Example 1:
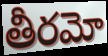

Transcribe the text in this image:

తీరమో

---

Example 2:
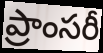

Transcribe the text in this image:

ప్రాంసరీ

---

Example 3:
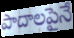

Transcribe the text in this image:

పాదాలపైనే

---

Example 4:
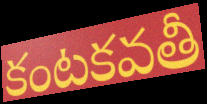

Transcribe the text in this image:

కంటకవతీ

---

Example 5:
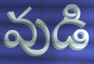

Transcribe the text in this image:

వుడి